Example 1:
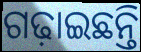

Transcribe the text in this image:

ଗଢ଼ାଇଛନ୍ତି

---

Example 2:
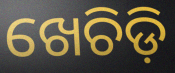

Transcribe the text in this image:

ଖେଚିଡ଼ି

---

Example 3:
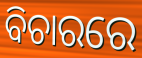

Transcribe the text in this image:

ବିଚାରରେ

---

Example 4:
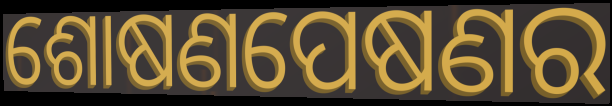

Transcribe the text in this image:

ଶୋଷଣପେଷଣର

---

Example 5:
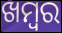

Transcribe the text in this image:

ଖମ୍ବର